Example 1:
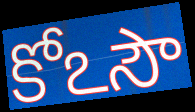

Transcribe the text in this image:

కోఽసౌ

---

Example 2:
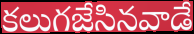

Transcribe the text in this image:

కలుగజేసినవాడే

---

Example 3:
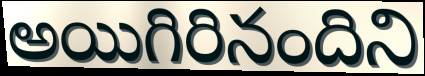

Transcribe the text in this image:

అయిగిరినందిని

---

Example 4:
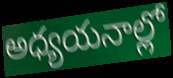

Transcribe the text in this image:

అధ్యయనాల్లో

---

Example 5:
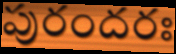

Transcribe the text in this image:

పురందరః